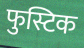
फुस्टिक